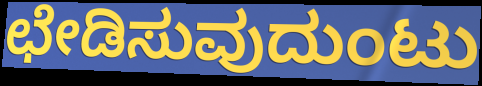
ಛೇಡಿಸುವುದುಂಟು